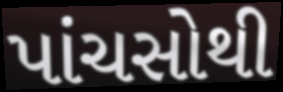
પાંચસોથી